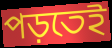
পড়তেই